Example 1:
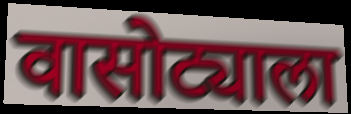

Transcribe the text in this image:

वासोट्याला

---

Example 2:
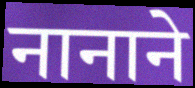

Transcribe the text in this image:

नानाने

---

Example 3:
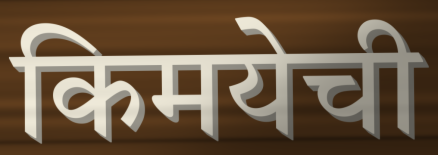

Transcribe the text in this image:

किमयेची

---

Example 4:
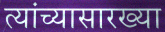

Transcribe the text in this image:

त्यांच्यासारख्या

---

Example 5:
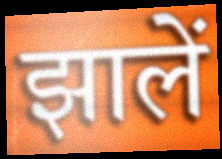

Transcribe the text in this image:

झालें